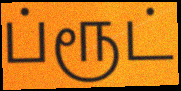
ப்ரூட்